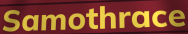
Samothrace